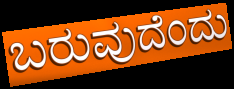
ಬರುವುದೆಂದು